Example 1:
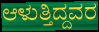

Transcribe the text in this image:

ಆಳುತ್ತಿದ್ದವರ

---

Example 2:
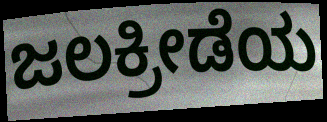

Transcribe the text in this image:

ಜಲಕ್ರೀಡೆಯ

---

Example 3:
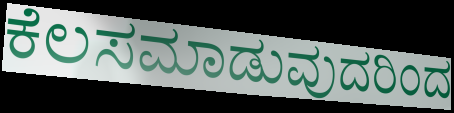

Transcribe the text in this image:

ಕೆಲಸಮಾಡುವುದರಿಂದ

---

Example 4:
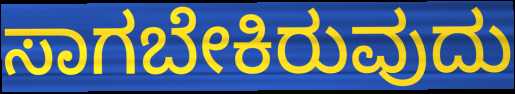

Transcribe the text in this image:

ಸಾಗಬೇಕಿರುವುದು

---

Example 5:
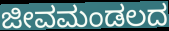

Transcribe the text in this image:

ಜೀವಮಂಡಲದ